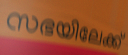
സഭയിലേക്ക്